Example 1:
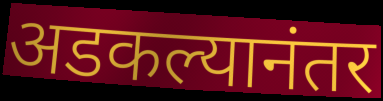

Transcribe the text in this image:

अडकल्यानंतर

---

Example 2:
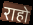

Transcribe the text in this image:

राहो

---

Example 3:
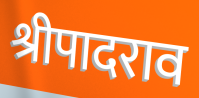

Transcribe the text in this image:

श्रीपादराव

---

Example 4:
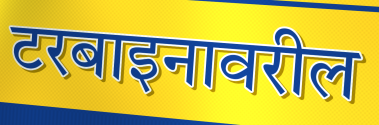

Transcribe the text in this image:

टरबाइनावरील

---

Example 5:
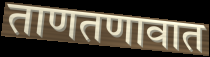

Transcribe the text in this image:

ताणतणावात